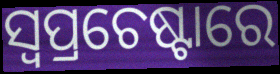
ସ୍ଵପ୍ରଚେଷ୍ଟାରେ